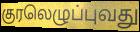
குரலெழுப்புவது